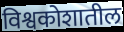
विश्वकोशातील